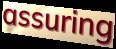
assuring